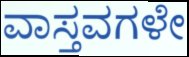
ವಾಸ್ತವಗಳೇ